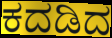
ಕದಡಿದ